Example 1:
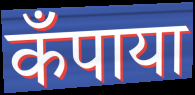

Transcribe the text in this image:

कँपाया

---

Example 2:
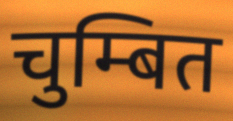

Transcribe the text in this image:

चुम्बित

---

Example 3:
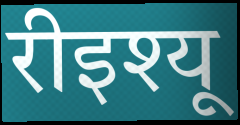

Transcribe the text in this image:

रीइश्यू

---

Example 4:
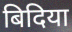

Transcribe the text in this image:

बिदिया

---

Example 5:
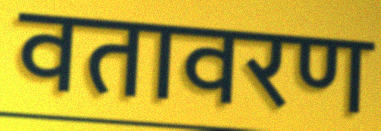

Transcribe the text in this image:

वतावरण